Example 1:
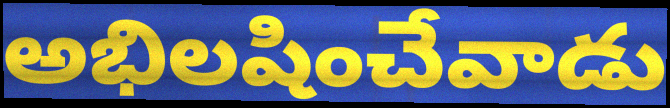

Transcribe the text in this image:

అభిలషించేవాడు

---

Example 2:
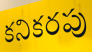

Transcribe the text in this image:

కనికరపు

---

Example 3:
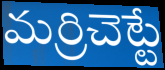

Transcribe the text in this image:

మర్రిచెట్టే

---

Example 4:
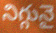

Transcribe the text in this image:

నిగ్గునై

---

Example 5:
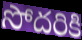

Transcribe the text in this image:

సోదరికి